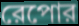
রেপোর